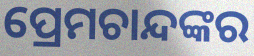
ପ୍ରେମଚାନ୍ଦଙ୍କର